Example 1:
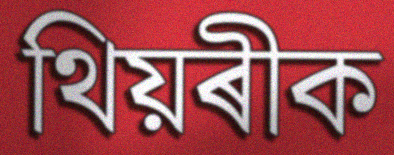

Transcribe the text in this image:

থিয়ৰীক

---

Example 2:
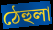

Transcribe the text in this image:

ঠেহুলা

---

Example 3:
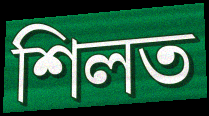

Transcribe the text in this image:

শিলত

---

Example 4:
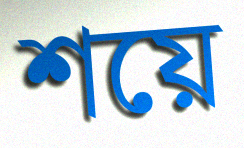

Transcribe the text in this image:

শয়ে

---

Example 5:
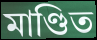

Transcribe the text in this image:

মাণ্ডিত